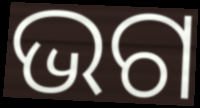
ଭଗ